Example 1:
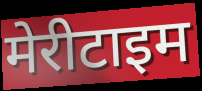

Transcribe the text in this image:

मेरीटाइम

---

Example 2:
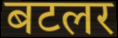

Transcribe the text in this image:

बटलर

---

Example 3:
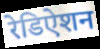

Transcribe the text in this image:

रेडिऐशन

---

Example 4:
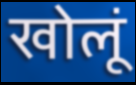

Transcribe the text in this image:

खोलूं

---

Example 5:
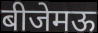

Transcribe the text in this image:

बीजेमऊ